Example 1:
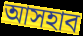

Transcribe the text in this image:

আসহাব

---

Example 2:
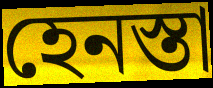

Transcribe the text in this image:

হেনস্তা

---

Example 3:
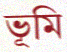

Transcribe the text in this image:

ভূমি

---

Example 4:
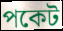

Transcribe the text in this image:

পকেট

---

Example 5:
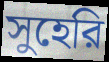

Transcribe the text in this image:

সুহেরি